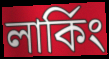
লার্কিং